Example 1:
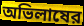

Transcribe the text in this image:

অভিলাষের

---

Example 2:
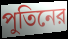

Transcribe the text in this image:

পুতিনের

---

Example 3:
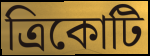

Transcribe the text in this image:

ত্রিকোটি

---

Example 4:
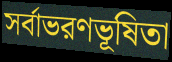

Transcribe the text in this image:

সর্বাভরণভূষিতা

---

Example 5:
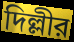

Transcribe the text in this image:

দিল্লীর